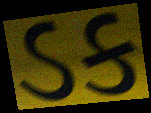
ડક